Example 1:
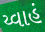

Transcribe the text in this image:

ય્વાહં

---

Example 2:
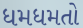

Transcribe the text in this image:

ધમધમતો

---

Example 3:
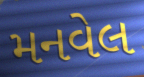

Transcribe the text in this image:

મનવેલ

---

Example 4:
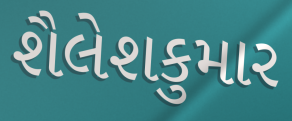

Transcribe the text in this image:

શૈલેશકુમાર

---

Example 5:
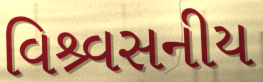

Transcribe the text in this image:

વિશ્ર્વસનીય